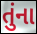
તુંના